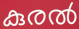
കുരൽ